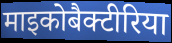
माइकोबैक्टीरिया